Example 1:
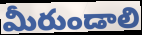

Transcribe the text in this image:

మీరుండాలి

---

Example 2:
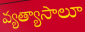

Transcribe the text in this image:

వ్యత్యాసాలూ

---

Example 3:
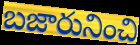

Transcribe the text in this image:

బజారునించి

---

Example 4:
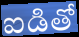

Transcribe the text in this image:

ఐడితో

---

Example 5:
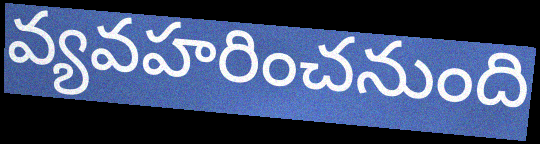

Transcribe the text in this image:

వ్యవహరించనుంది